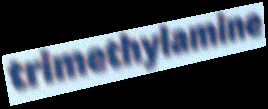
trimethylamine